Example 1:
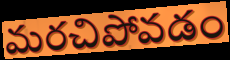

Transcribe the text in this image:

మరచిపోవడం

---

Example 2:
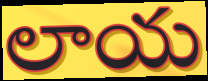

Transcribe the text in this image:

లాయ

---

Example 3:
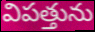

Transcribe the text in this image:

విపత్తును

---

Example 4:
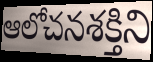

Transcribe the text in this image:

ఆలోచనశక్తిని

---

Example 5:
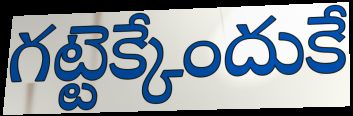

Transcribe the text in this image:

గట్టెక్కేందుకే